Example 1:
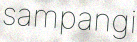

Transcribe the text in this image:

sampangi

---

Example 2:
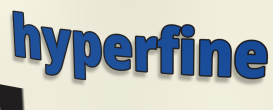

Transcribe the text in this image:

hyperfine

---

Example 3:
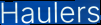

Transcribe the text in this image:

Haulers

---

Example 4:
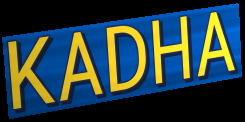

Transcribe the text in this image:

KADHA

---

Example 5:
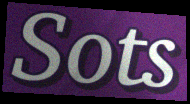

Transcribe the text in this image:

Sots